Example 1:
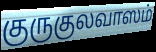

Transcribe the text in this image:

குருகுலவாஸம்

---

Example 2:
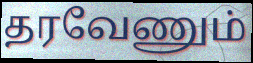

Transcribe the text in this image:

தரவேணும்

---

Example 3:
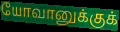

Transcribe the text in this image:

யோவானுக்குக்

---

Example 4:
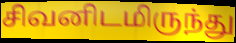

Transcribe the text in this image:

சிவனிடமிருந்து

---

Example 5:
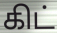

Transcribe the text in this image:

கிட்